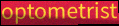
optometrist